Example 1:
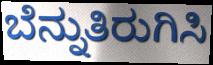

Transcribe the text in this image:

ಬೆನ್ನುತಿರುಗಿಸಿ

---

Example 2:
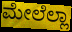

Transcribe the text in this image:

ಮೇಲೆಲ್ಲಾ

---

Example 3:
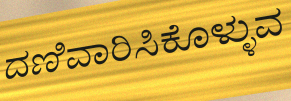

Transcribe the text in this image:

ದಣಿವಾರಿಸಿಕೊಳ್ಳುವ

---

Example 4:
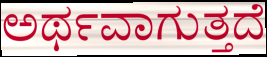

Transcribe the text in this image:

ಅರ್ಥವಾಗುತ್ತದೆ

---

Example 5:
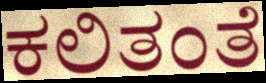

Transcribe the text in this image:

ಕಲಿತಂತೆ